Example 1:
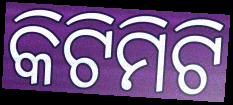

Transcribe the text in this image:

କିଟିମିଟି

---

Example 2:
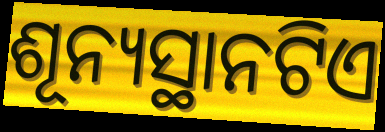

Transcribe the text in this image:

ଶୂନ୍ୟସ୍ଥାନଟିଏ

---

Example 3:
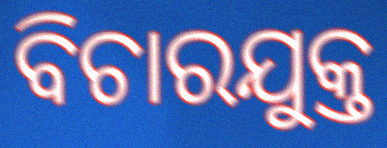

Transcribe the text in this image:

ବିଚାରଯୁକ୍ତ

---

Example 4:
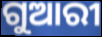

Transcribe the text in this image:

ଗୁଆରୀ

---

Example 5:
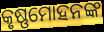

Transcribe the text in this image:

କୃଷ୍ଣମୋହନଙ୍କ